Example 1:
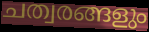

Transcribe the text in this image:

ചത്വരങ്ങളും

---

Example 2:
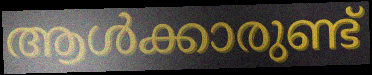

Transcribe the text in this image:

ആൾക്കാരുണ്ട്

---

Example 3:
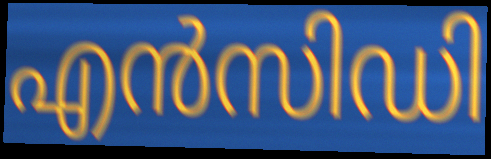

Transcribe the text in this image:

എൻസിഡി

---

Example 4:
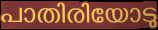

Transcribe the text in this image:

പാതിരിയോടു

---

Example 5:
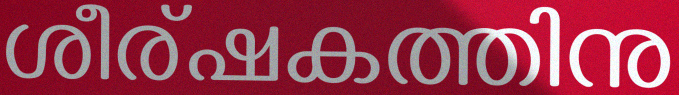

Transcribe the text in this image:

ശീര്ഷകത്തിനു